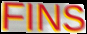
FINS